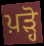
ਪ਼ੜ੍ਹੋ